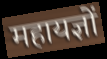
महायज्ञों